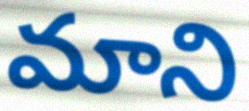
మాని